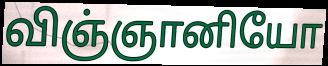
விஞ்ஞானியோ